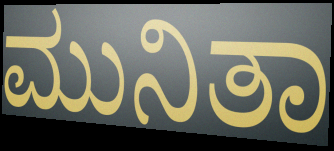
ಮುನಿತಾ